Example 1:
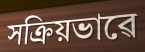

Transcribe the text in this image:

সক্ৰিয়ভাৱে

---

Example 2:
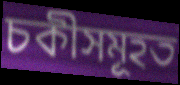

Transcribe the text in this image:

চকীসমূহত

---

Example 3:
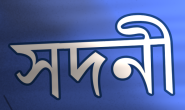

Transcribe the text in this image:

সদনী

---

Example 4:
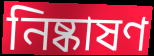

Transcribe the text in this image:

নিষ্কাষণ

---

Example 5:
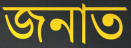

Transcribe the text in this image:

জনাত